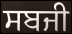
ਸਬਜੀ